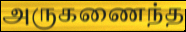
அருகணைந்த